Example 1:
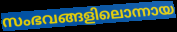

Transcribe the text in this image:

സംഭവങ്ങളിലൊന്നായ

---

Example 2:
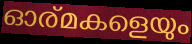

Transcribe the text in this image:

ഓര്മകളെയും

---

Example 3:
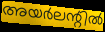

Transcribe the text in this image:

അയർലന്റിൽ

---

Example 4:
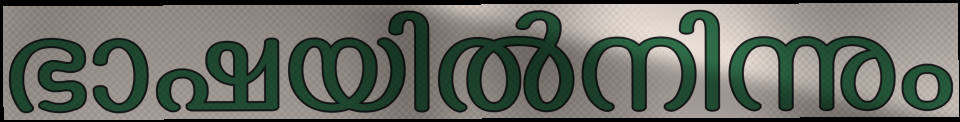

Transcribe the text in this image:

ഭാഷയിൽനിന്നും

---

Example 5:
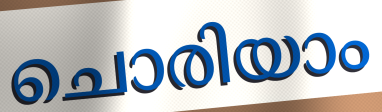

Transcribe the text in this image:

ചൊരിയാം